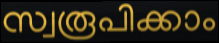
സ്വരൂപിക്കാം